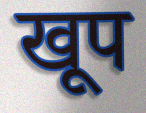
खूप